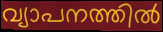
വ്യാപനത്തിൽ